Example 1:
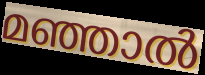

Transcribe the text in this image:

മഞ്ഞാൽ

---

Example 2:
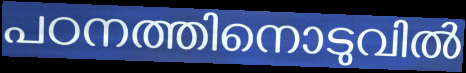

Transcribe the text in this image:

പഠനത്തിനൊടുവിൽ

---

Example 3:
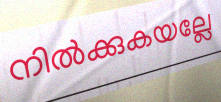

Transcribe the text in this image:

നിൽക്കുകയല്ലേ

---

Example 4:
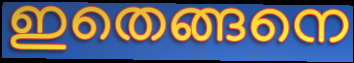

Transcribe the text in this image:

ഇതെങ്ങനെ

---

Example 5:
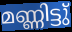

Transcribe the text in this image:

മണ്ണിട്ടു്